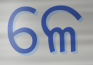
ଳେ